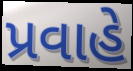
પ્રવાહે